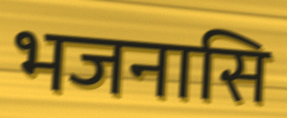
भजनासि